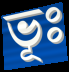
ভূঃ